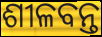
ଶୀଳବନ୍ତ